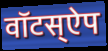
वॉटस्ऐप